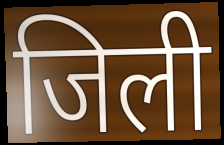
जिली